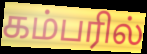
கம்பரில்